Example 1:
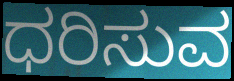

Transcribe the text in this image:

ಧರಿಸುವ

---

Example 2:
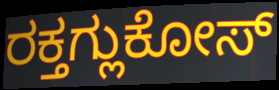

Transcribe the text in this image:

ರಕ್ತಗ್ಲುಕೋಸ್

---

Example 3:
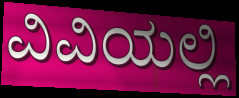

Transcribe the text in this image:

ವಿವಿಯಲ್ಲಿ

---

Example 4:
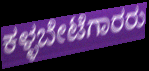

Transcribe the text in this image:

ಕಳ್ಳಬೇಟೆಗಾರರು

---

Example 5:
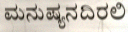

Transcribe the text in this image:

ಮನುಷ್ಯನದಿರಲಿ